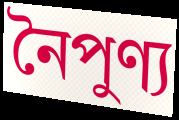
নৈপুণ্য